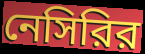
নেসিরির